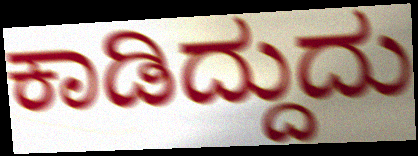
ಕಾಡಿದ್ದುದು